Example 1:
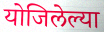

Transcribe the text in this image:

योजिलेल्या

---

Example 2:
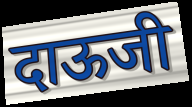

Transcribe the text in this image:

दाऊजी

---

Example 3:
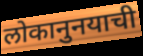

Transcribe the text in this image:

लोकानुनयाची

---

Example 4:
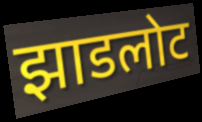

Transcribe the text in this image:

झाडलोट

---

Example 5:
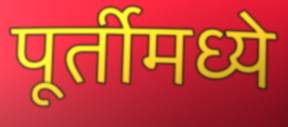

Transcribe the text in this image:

पूर्तीमध्ये